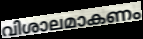
വിശാലമാകണം